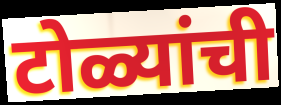
टोळ्यांची